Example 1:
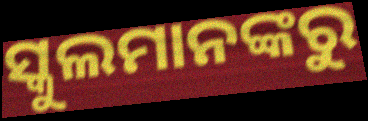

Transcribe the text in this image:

ସ୍କୁଲମାନଙ୍କରୁ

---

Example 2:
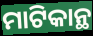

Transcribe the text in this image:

ମାଟିକାନ୍ଥ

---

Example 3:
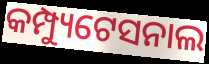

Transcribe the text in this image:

କମ୍ପ୍ୟୁଟେସନାଲ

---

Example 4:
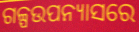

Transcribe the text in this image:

ଗଳ୍ପଉପନ୍ୟାସରେ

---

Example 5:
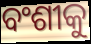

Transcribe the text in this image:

ବଂଶୀକୁ